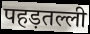
पहड़तल्ली